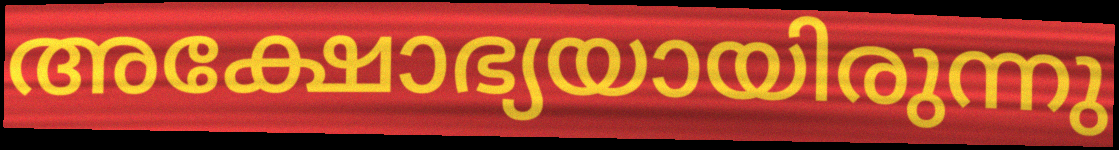
അക്ഷോഭ്യയായിരുന്നു